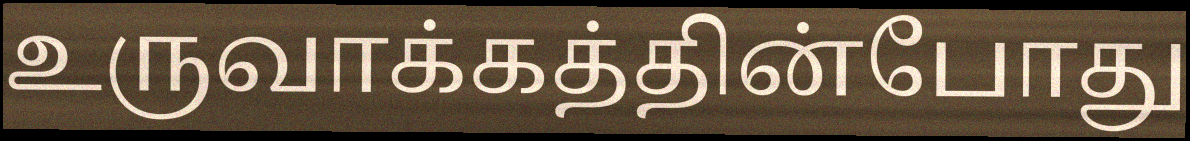
உருவாக்கத்தின்போது